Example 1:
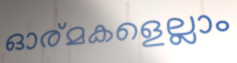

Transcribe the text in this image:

ഓര്മകളെല്ലാം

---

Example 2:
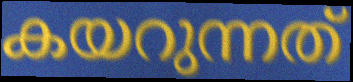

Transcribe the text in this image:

കയറുന്നത്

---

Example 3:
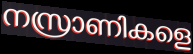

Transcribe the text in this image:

നസ്രാണികളെ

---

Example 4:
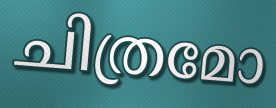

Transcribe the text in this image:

ചിത്രമോ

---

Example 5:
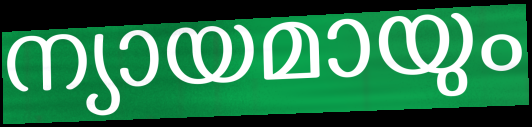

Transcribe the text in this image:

ന്യായമായും